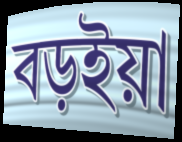
বড়ইয়া